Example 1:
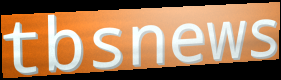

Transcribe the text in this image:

tbsnews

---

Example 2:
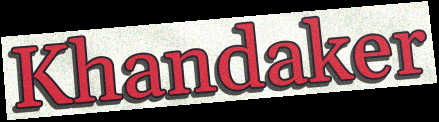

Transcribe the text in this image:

Khandaker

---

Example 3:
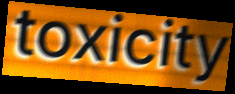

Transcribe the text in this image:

toxicity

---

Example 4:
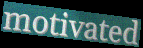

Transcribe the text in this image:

motivated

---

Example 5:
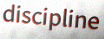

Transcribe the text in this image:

discipline